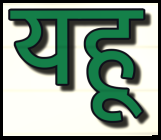
यहू